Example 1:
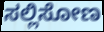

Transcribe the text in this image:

ಸಲ್ಲಿಸೋಣ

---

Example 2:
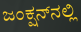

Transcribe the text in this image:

ಜಂಕ್ಷನ್‌ನಲ್ಲಿ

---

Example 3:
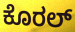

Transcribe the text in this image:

ಕೊರಲ್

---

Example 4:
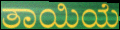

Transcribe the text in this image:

ತಾಯಿಯೆ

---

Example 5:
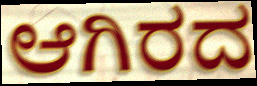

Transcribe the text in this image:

ಆಗಿರದ